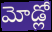
మోడ్లో